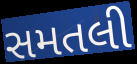
સમતલી